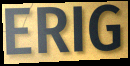
ERIG